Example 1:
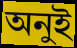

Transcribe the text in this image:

অনুই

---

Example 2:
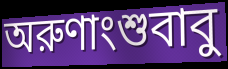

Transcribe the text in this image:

অরুণাংশুবাবু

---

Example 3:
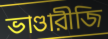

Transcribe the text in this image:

ভাণ্ডারীজি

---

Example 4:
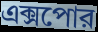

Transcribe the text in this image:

এক্সপোর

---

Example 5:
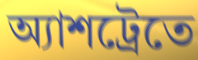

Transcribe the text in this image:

অ্যাশট্রেতে